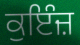
ਕੁਇੰਜ਼